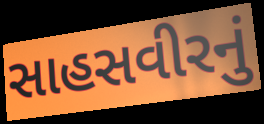
સાહસવીરનું